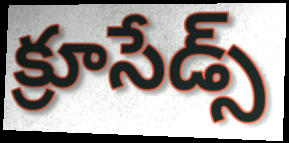
క్రూసేడ్స్